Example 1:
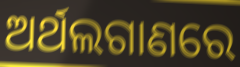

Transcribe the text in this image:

ଅର୍ଥଲଗାଣରେ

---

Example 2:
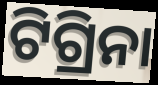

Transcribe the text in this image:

ଟିଗ୍ରିନା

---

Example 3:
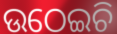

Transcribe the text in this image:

ଉଠେଇଚି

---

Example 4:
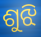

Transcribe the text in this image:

ଶୁଝି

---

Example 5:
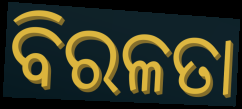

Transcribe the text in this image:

ବିରଳତା